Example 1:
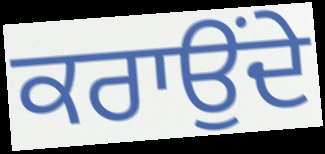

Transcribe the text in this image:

ਕਰਾਉਂਦੇ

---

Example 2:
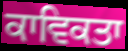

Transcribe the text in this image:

ਕਾਵਿਕਤਾ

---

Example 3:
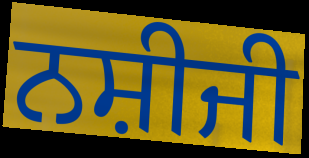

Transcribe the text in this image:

ਨਸ਼ੀਜੀ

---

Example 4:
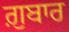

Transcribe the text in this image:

ਗ਼ੁਬਾਰ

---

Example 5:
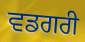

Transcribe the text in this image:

ਵਡਗਰੀ